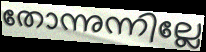
തോന്നുന്നില്ലേ